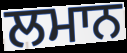
ਲਮਾਨ